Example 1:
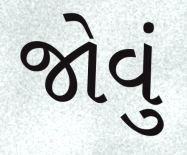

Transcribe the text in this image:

જોવું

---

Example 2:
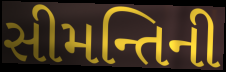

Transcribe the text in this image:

સીમન્તિની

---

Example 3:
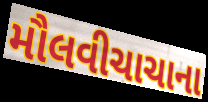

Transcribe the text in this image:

મૌલવીચાચાના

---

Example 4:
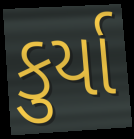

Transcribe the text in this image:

કુર્યા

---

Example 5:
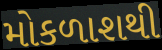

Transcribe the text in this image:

મોકળાશથી